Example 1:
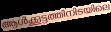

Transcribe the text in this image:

ആൾക്കൂട്ടത്തിനിടയിലെ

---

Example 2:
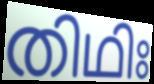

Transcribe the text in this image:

തിഥിഃ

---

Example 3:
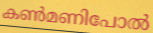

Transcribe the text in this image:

കൺമണിപോൽ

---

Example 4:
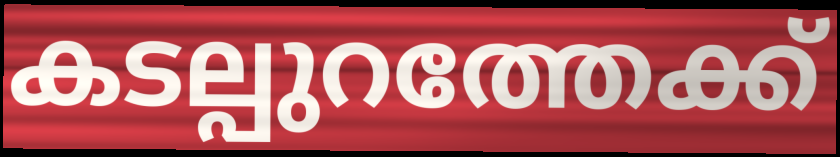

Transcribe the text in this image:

കടല്പുറത്തേക്ക്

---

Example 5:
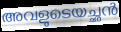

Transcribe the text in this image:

അവളുടെയച്ഛൻ